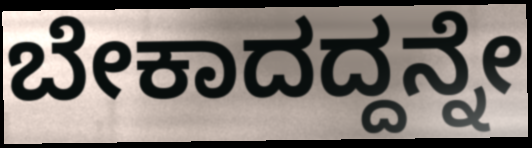
ಬೇಕಾದದ್ದನ್ನೇ